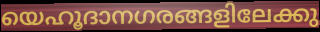
യെഹൂദാനഗരങ്ങളിലേക്കു